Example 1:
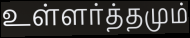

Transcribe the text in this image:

உள்ளர்த்தமும்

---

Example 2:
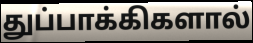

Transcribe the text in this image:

துப்பாக்கிகளால்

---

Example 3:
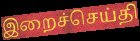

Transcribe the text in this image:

இறைச்செய்தி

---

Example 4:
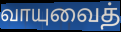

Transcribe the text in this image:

வாயுவைத்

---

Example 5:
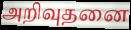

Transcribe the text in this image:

அறிவுதனை